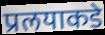
प्रलयाकडे